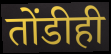
तोंडीही